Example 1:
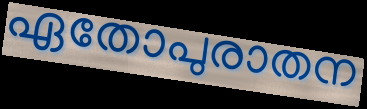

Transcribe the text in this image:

ഏതോപുരാതന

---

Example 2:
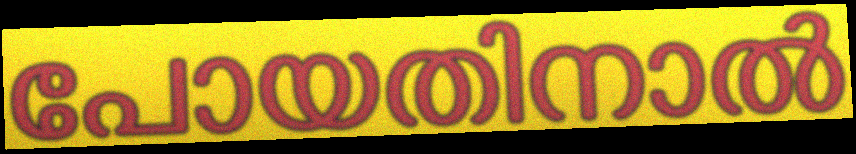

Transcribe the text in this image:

പോയതിനാൽ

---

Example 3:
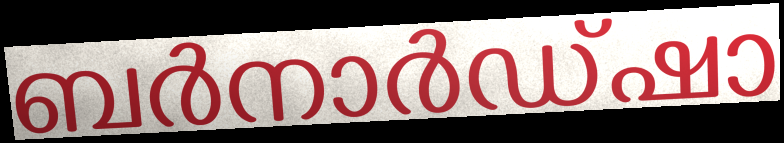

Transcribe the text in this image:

ബർനാർഡ്ഷാ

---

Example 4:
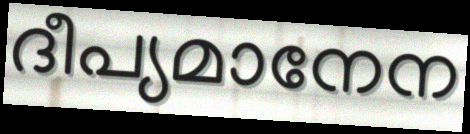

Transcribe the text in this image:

ദീപ്യമാനേന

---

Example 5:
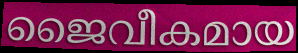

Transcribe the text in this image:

ജൈവീകമായ